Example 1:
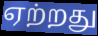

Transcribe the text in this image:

ஏற்றது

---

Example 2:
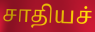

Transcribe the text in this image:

சாதியச்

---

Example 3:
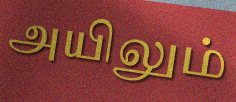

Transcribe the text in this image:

அயிலும்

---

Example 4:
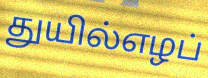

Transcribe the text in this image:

துயில்எழப்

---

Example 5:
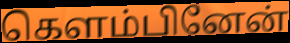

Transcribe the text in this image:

கெளம்பினேன்